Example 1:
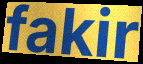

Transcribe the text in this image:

fakir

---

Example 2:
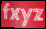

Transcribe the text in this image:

fxyz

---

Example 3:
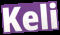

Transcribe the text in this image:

Keli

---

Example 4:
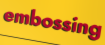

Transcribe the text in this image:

embossing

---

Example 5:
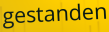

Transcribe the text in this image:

gestanden